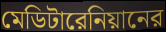
মেডিটারেনিয়ানের